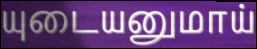
யுடையனுமாய்